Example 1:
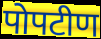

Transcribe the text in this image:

पोपटीण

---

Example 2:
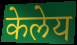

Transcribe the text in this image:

केलेय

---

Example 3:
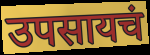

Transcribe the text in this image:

उपसायचं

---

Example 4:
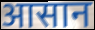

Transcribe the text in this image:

आसान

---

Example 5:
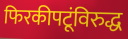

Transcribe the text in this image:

फिरकीपटूंविरुद्ध